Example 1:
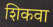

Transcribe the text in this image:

शिकवा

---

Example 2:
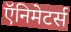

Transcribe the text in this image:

ऍनिमेटर्स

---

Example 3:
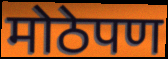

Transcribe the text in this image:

मोठेपण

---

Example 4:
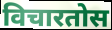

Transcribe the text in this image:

विचारतोस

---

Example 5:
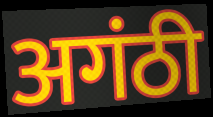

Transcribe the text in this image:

अगंठी